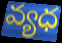
వ్యధ